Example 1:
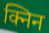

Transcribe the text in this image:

क्निन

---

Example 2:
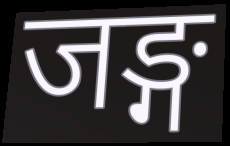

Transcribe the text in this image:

जङ्ग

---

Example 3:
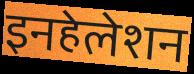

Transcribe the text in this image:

इनहेलेशन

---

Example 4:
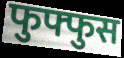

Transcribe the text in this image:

फुफ्फुस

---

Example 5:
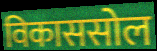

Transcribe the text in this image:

विकाससोल